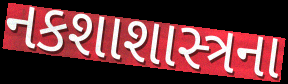
નકશાશાસ્ત્રના